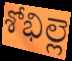
శోభిల్లె